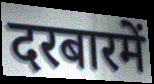
दरबारमें